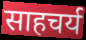
साहचर्य